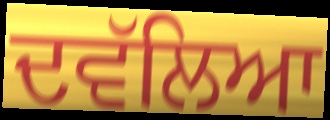
ਦਵੱਲਿਆ